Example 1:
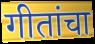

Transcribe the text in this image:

गीतांचा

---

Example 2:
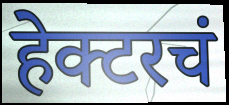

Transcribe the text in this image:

हेक्टरचं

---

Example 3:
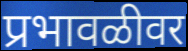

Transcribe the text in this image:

प्रभावळीवर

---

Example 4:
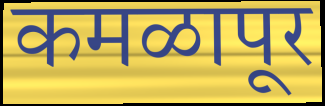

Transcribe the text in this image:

कमळापूर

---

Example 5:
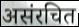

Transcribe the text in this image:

असंरचित